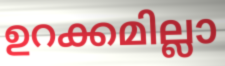
ഉറക്കമില്ലാ